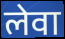
लेवा